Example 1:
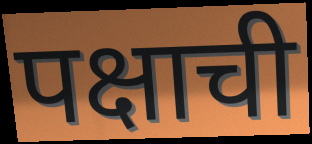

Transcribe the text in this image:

पक्षाची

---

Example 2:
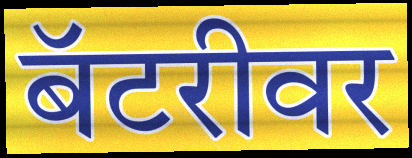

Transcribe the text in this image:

बॅटरीवर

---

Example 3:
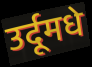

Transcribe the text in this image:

उर्दूमधे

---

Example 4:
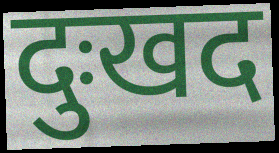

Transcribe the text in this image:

दुःखद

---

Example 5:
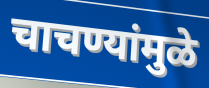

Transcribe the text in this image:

चाचण्यांमुळे